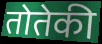
तोतेकी